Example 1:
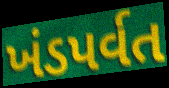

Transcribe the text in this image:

ખંડપર્વત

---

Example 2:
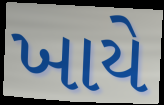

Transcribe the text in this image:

ખાયે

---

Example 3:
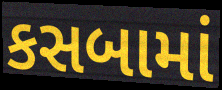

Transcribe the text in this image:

કસબામાં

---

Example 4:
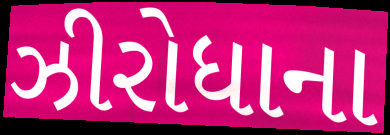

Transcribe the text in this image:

ઝીરોધાના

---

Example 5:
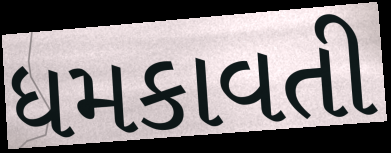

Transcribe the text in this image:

ધમકાવતી